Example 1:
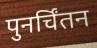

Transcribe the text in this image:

पुनर्चिंतन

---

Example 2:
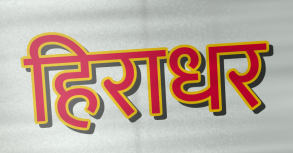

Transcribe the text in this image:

हिराधर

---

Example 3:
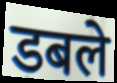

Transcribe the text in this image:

डबले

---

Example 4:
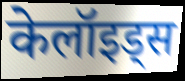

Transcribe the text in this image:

केलॉइड्स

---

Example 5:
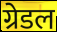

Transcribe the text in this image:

ग्रेडल